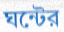
ঘন্টের